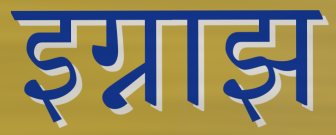
इग्नाझ